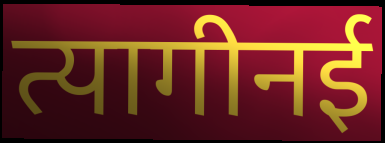
त्यागीनई